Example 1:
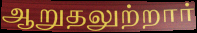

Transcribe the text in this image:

ஆறுதலுற்றார்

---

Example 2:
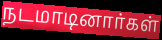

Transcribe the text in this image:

நடமாடினார்கள்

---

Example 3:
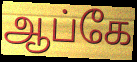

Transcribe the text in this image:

ஆப்கே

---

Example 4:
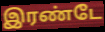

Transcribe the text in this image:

இரண்டே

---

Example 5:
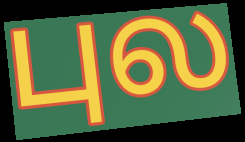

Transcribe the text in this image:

புல